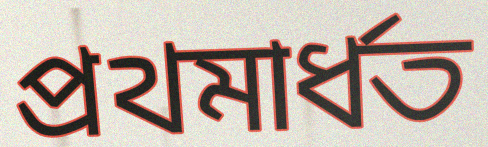
প্ৰথমাৰ্ধত